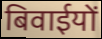
बिवाईयों